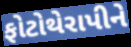
ફોટોથેરાપીને